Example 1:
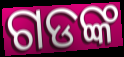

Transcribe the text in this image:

ଗଡଙ୍କ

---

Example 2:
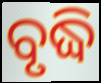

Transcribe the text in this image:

ବୃଦ୍ଧି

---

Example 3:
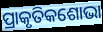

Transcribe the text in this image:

ପ୍ରାକୃତିକଶୋଭା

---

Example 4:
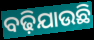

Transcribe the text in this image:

ବଢ଼ିଯାଉଛି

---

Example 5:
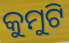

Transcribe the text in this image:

କୁମୁଟି